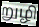
றுழி